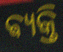
ଵ୍ଯକ୍ତି